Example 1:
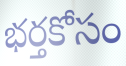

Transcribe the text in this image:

భర్తకోసం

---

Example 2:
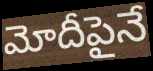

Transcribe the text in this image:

మోదీపైనే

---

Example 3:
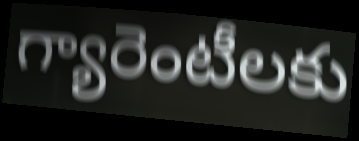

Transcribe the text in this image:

గ్యారెంటీలకు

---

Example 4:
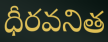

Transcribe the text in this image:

ధీరవనిత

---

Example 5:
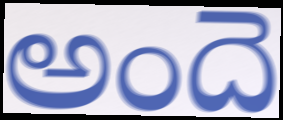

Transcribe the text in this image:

అందె